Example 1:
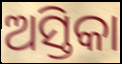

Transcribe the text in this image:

ଅସ୍ତିକା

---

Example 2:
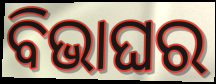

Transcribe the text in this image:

ବିଭାଘର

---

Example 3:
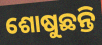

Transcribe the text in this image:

ଶୋଷୁଛନ୍ତି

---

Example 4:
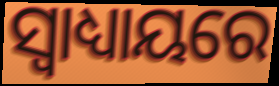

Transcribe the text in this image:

ସ୍ଵାଧ୍ୟାୟରେ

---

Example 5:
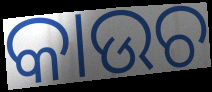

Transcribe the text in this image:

କାଉଚ